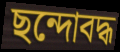
ছন্দোবদ্ধ